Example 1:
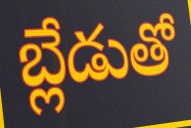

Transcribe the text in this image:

బ్లేడుతో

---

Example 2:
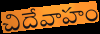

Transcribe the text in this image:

చిదేవాహం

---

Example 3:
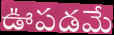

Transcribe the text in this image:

ఊపడమే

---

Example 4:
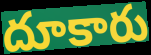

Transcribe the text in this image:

దూకారు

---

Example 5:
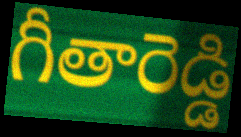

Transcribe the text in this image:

గీతారెడ్డి